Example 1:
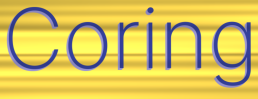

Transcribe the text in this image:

Coring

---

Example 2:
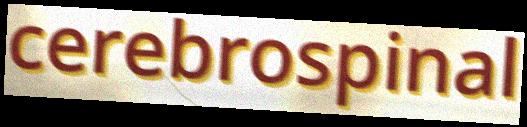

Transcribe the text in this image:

cerebrospinal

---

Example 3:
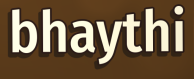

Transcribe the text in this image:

bhaythi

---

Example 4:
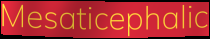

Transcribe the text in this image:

Mesaticephalic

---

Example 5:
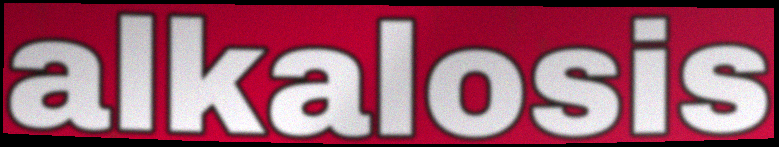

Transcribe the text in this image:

alkalosis